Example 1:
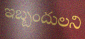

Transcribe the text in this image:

ఇబ్బందులని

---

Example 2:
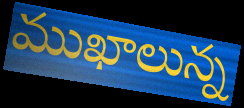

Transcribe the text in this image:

ముఖాలున్న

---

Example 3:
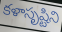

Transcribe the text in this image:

కళాసృష్టిని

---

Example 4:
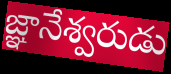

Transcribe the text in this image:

జ్ఞానేశ్వరుడు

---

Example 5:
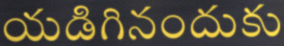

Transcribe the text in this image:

యడిగినందుకు